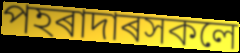
পহৰাদাৰসকলে